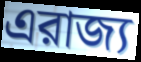
এরাজ্য